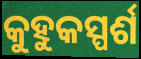
କୁହୁକସ୍ପର୍ଶ